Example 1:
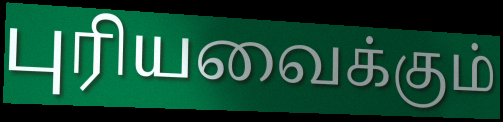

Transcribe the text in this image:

புரியவைக்கும்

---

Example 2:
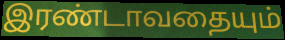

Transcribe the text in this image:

இரண்டாவதையும்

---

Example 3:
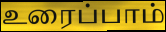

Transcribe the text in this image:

உரைப்பாம்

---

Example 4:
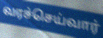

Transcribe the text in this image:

வரச்செய்வார்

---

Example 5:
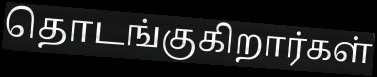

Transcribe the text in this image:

தொடங்குகிறார்கள்